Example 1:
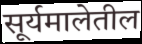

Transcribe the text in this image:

सूर्यमालेतील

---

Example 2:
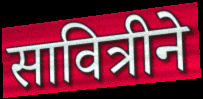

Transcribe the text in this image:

सावित्रीने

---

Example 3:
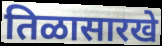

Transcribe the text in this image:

तिळासारखे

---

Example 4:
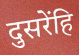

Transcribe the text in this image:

दुसरेंहि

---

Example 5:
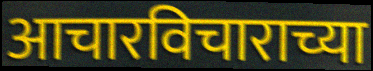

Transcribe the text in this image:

आचारविचाराच्या